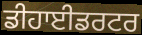
ਡੀਹਾਈਡਰਟਰ